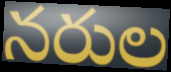
నరుల